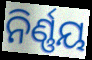
ନିର୍ଣ୍ଣୟ